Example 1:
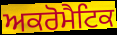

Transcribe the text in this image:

ਅਕਰੋਮੈਟਿਕ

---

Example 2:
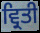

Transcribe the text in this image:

ਵ੍ਰਿਤੀ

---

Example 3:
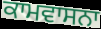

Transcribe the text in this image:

ਕਾਮਵਾਸਨਾ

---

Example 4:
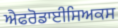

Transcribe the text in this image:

ਐਫਰੋਡਾਈਸਿਅਕਸ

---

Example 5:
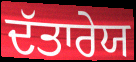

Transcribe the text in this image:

ਦੱਤਾਰੇਯ